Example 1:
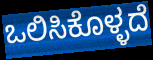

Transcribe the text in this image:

ಒಲಿಸಿಕೊಳ್ಳದೆ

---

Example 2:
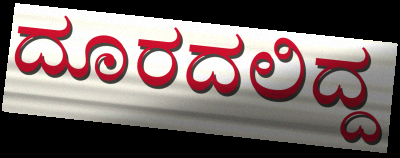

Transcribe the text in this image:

ದೂರದಲಿದ್ದ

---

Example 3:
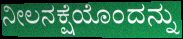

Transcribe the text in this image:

ನೀಲನಕ್ಷೆಯೊಂದನ್ನು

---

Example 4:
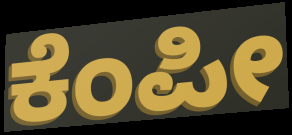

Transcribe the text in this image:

ಕೆಂಪೀ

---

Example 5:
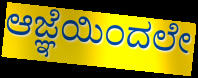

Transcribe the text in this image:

ಆಜ್ಞೆಯಿಂದಲೇ